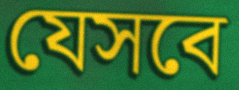
যেসবে